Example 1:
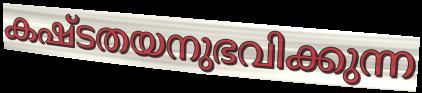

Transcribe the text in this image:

കഷ്ടതയനുഭവിക്കുന്ന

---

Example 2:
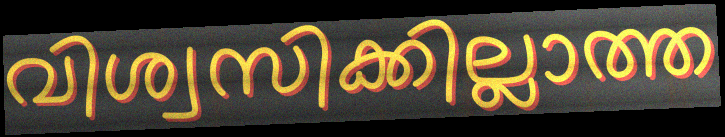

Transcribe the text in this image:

വിശ്വസിക്കില്ലാത്ത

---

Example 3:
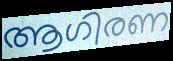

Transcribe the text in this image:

ആഗിരണ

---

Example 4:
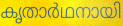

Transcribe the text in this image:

കൃതാർഥനായി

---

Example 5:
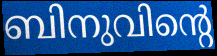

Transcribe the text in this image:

ബിനുവിന്റെ